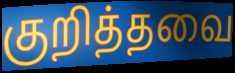
குறித்தவை